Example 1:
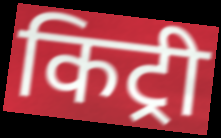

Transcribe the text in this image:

किट्री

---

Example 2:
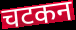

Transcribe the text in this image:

चटकन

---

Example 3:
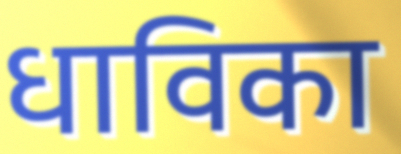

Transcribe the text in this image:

धाविका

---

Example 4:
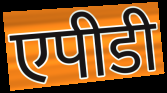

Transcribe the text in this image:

एपीडी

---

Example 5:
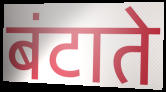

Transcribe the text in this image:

बंटाते